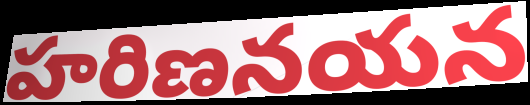
హరిణనయన